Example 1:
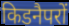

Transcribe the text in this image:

किडनैपरों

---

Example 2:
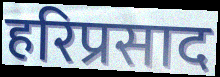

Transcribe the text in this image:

हरिप्रसाद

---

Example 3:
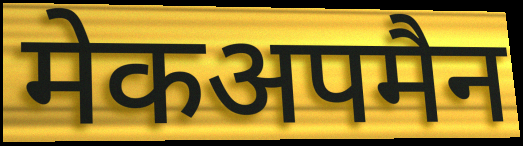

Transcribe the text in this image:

मेकअपमैन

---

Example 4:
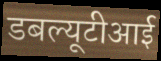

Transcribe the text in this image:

डबल्यूटीआई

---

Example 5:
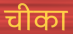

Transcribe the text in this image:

चीका